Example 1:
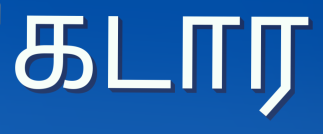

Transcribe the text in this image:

கடார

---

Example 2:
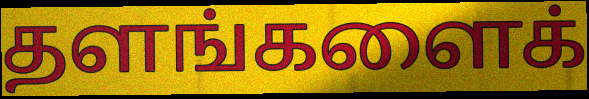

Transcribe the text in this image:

தளங்களைக்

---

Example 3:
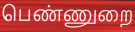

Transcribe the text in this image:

பெண்ணுறை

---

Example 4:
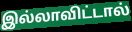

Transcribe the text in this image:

இல்லாவிட்டால்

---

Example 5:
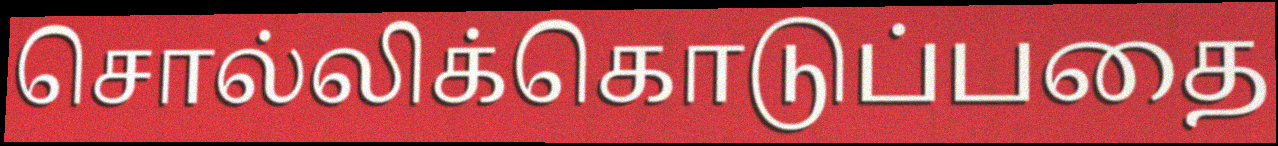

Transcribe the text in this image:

சொல்லிக்கொடுப்பதை